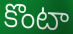
కొంటా